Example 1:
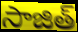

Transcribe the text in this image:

సాజిత్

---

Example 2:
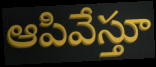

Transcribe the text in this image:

ఆపివేస్తూ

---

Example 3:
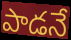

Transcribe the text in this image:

పాడనే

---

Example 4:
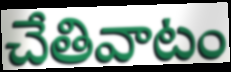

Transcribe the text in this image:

చేతివాటం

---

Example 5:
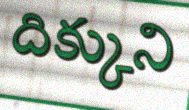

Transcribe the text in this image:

దిక్కుని